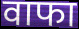
वाफा